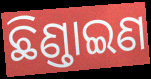
ଛିଣ୍ଡାଇଣ